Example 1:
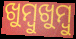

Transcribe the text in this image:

ଖୁମ୍ୱୁଖୁମ୍ବୁ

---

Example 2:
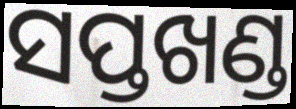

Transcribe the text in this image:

ସପ୍ତଖଣ୍ଡ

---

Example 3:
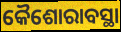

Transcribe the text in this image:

କୈଶୋରାବସ୍ଥା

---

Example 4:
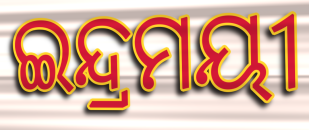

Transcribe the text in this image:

ଇନ୍ଦ୍ରମୟୀ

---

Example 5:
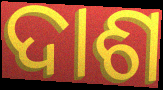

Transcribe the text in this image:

ଦାଶ